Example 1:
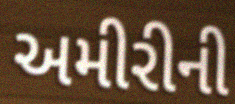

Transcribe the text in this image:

અમીરીની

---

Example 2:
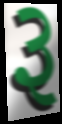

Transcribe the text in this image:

રૂ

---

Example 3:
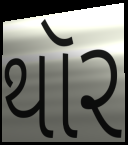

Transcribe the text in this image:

થૉર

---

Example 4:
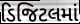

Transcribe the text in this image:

ડિજિટલમાં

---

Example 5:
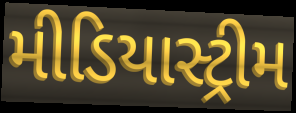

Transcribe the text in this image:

મીડિયાસ્ટ્રીમ